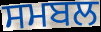
ਸਮਬਲ